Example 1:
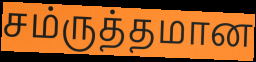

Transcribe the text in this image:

சம்ருத்தமான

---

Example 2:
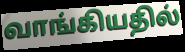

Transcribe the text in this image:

வாங்கியதில்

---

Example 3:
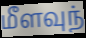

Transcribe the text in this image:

மீளவுந்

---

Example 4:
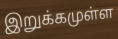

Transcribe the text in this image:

இறுக்கமுள்ள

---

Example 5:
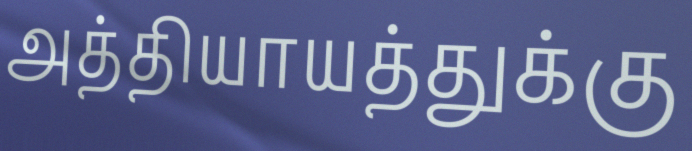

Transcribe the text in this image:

அத்தியாயத்துக்கு